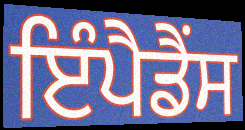
ਇੰਪੈਡੈਂਸ